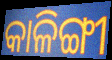
କାଳିଙ୍ଗୀ